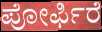
ಪೋರ್ಫಿರೆ